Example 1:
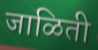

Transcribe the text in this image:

जाळिती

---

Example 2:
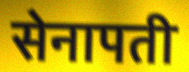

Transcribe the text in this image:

सेनापती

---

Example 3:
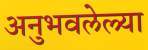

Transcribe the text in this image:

अनुभवलेल्या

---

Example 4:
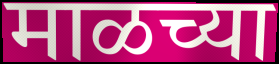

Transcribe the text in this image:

माळच्या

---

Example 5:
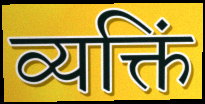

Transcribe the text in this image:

व्यक्तिं